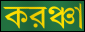
করঞ্চা